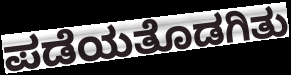
ಪಡೆಯತೊಡಗಿತು